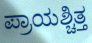
ಪ್ರಾಯಶ್ಚಿತ್ತ